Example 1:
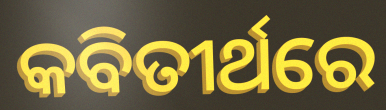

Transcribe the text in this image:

କବିତୀର୍ଥରେ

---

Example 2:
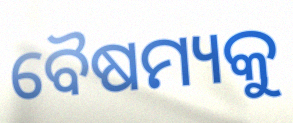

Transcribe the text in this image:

ବୈଷମ୍ୟକୁ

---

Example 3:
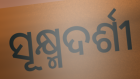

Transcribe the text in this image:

ସୂକ୍ଷ୍ମଦର୍ଶୀ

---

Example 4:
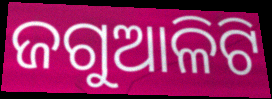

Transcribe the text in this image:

ଜଗୁଆଳିଟି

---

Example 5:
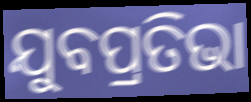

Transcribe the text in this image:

ଯୁବପ୍ରତିଭା